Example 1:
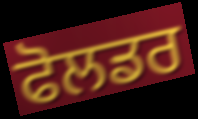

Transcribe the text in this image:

ਫੋਲਡਰ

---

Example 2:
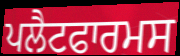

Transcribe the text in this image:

ਪਲੈਟਫਾਰਮਸ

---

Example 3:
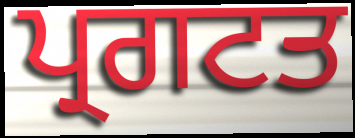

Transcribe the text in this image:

ਪ੍ਰਗਟਤ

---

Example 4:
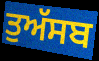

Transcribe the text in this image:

ਤੁਅੱਸਬ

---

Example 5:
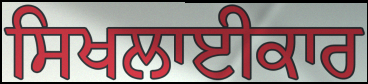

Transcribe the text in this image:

ਸਿਖਲਾਈਕਾਰ